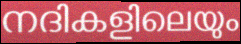
നദികളിലെയും